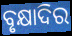
ବୃକ୍ଷାଦିର